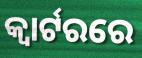
କ୍ୱାର୍ଟରରେ